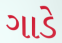
ગાડે